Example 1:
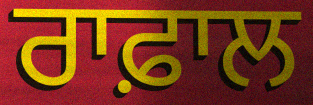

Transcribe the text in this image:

ਰਾਫ਼ਾਲ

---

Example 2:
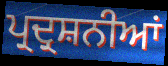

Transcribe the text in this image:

ਪ੍ਰਦ੍ਰਸ਼ਨੀਆਂ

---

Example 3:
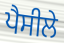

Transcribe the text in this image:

ਪੈਸੀਲੇ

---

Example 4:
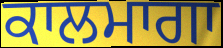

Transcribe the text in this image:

ਕਾਲਮਾਗਾ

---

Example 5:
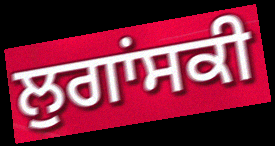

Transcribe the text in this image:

ਲੁਗਾਂਸਕੀ